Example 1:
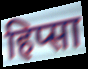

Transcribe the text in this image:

हिप्सा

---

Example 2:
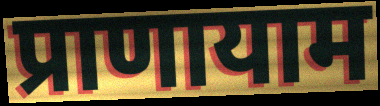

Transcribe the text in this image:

प्राणायाम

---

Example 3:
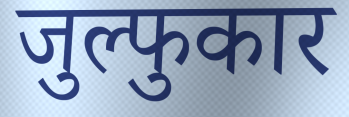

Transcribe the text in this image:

जुल्फुकार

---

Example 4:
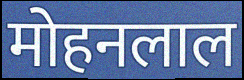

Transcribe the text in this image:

मोहनलाल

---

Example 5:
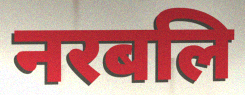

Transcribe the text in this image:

नरबलि